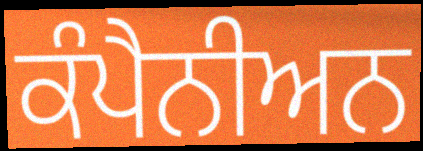
ਕੰਪੈਨੀਅਨ